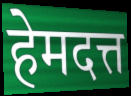
हेमदत्त